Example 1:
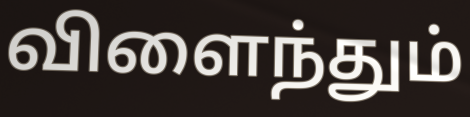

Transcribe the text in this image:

விளைந்தும்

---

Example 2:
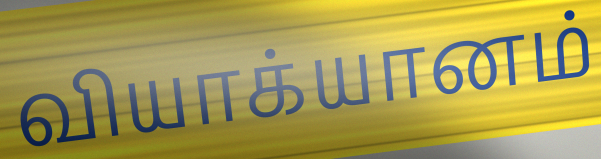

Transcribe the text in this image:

வியாக்யானம்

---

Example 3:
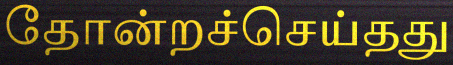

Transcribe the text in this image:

தோன்றச்செய்தது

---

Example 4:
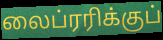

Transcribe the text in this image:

லைப்ரரிக்குப்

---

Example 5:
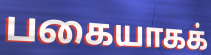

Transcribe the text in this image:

பகையாகக்